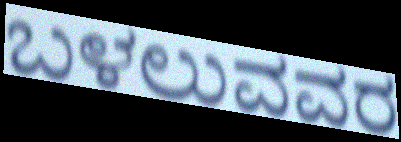
ಬಳಲುವವರ